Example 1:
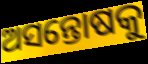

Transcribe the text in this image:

ଅସନ୍ତୋଷକୁ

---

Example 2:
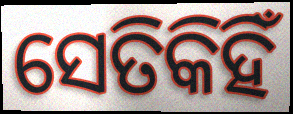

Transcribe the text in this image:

ସେତିକିହିଁ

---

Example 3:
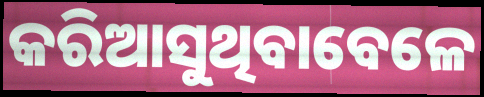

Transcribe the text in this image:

କରିଆସୁଥିବାବେଳେ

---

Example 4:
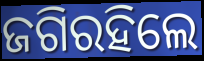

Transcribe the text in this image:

ଜଗିରହିଲେ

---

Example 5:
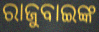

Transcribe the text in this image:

ରାଜୁବାଇଙ୍କ